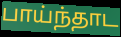
பாய்ந்தாட